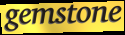
gemstone